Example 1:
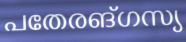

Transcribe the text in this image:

പതേരങ്ഗസ്യ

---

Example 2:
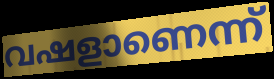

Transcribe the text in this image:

വഷളാണെന്ന്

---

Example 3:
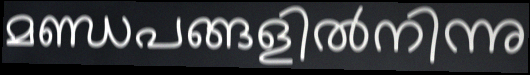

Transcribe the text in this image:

മണ്ഡപങ്ങളിൽനിന്നു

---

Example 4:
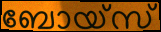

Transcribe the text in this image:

ബോയ്സ്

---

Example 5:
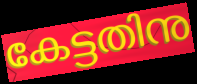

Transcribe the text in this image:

കേട്ടതിനു